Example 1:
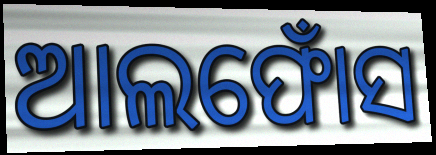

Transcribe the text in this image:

ଆଲଫୋଁସ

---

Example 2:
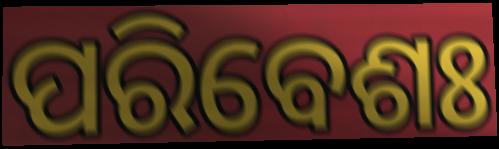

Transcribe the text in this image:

ପରିବେଶଃ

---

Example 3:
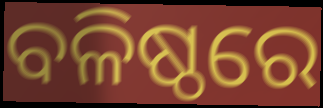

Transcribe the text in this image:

ବଳିଷ୍ଠରେ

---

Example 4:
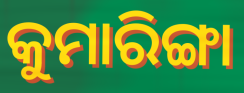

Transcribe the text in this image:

କୁମାରିଙ୍ଗା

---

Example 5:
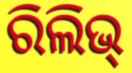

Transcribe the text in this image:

ରିଲିଭ୍